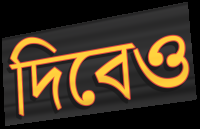
দিবেও